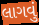
લાગવું